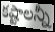
కష్టాలన్నీ